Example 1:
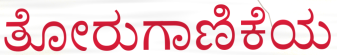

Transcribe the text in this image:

ತೋರುಗಾಣಿಕೆಯ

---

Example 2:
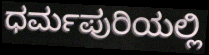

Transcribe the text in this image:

ಧರ್ಮಪುರಿಯಲ್ಲಿ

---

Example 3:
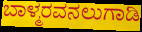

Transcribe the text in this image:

ಬಾಳ್ಮರವನಲುಗಾಡಿ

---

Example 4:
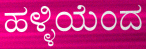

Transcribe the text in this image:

ಹಳ್ಳಿಯೆಂದ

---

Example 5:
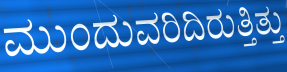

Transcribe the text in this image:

ಮುಂದುವರಿದಿರುತ್ತಿತ್ತು